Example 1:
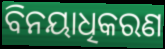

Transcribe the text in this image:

ବିନୟାଧିକରଣ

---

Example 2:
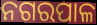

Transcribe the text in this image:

ନଗରପାଳ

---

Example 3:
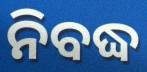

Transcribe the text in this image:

ନିବଦ୍ଧ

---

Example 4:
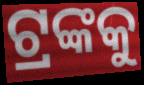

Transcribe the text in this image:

ଟ୍ରଙ୍କକୁ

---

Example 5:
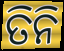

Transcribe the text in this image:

ତିନି